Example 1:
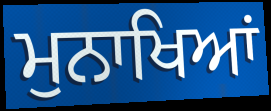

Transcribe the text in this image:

ਮੁਨਾਖਿਆਂ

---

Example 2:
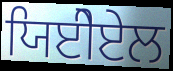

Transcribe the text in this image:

ਯਿਈੇਏਲ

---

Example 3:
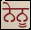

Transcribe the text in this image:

ਨੇਨੂ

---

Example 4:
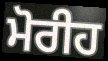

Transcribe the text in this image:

ਮੋਰੀਹ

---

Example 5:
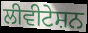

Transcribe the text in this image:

ਲੀਵੀਟੇਸ਼ਨ